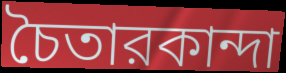
চৈতারকান্দা